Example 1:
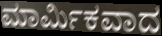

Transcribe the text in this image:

ಮಾರ್ಮಿಕವಾದ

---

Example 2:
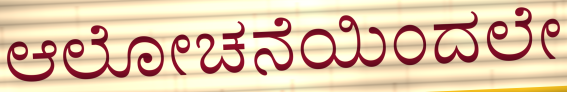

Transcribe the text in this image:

ಆಲೋಚನೆಯಿಂದಲೇ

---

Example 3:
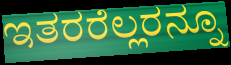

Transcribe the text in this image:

ಇತರರೆಲ್ಲರನ್ನೂ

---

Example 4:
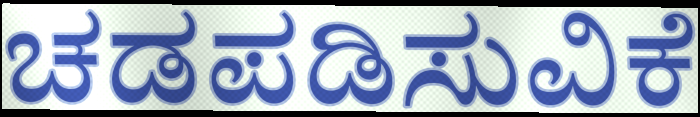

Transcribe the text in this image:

ಚಡಪಡಿಸುವಿಕೆ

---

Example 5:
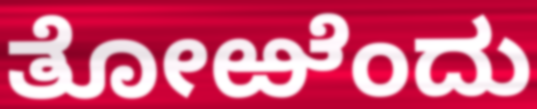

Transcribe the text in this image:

ತೋಱೆಂದು